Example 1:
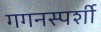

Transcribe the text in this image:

गगनस्पर्शी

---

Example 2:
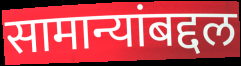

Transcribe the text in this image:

सामान्यांबद्दल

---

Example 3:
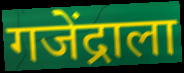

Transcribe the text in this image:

गजेंद्राला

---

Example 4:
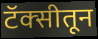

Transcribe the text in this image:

टॅक्‍सीतून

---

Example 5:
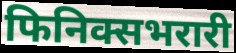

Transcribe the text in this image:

फिनिक्सभरारी